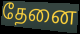
தேனை